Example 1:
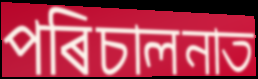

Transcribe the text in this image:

পৰিচালনাত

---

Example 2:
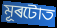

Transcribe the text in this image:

মূৰটোত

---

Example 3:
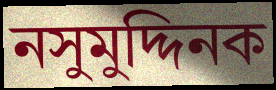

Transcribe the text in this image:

নসুমুদ্দিনক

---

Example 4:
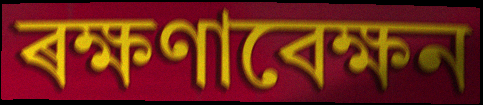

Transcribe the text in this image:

ৰক্ষণাবেক্ষন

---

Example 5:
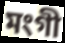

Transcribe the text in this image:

মংগী